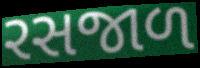
રસજાળ